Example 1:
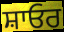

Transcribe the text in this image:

ਸ਼ਾਓਰ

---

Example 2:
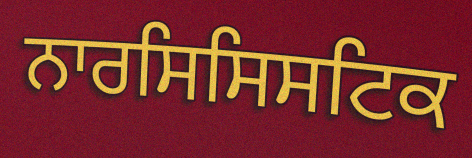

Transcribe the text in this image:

ਨਾਰਸਿਸਿਸਟਿਕ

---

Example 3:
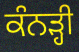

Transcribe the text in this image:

ਕੰਨੜ੍ਹੀ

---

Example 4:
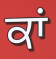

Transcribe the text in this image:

ਕਾਂ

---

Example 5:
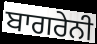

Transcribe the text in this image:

ਬਾਗਰੇਨੀ